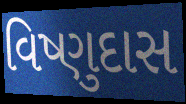
વિષ્ણુદાસ